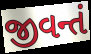
જીવન્તં